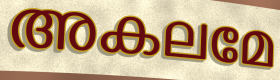
അകലമേ